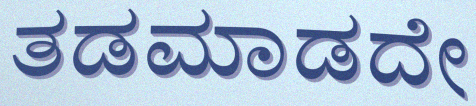
ತಡಮಾಡದೇ